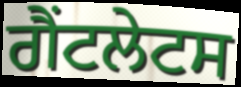
ਗੈਂਟਲੇਟਸ